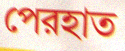
পেরহাত